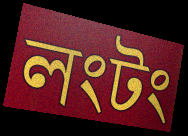
লংটং